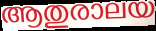
ആതുരാലയ